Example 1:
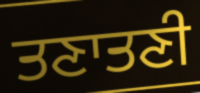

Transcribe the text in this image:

ਤਣਾਤਣੀ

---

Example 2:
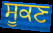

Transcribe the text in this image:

ਸੂਕਣ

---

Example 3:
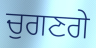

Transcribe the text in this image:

ਚੁਗਣਗੇ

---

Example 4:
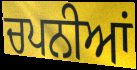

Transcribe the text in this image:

ਚਪਨੀਆਂ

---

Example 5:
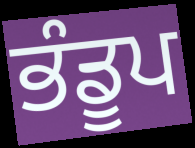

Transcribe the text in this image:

ਭੰਡੂਪ